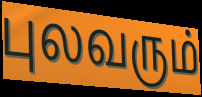
புலவரும்